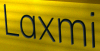
Laxmi